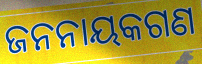
ଜନନାୟକଗଣ